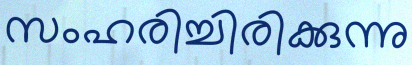
സംഹരിച്ചിരിക്കുന്നു